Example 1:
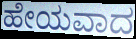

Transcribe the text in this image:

ಹೇಯವಾದ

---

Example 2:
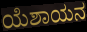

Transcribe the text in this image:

ಯೆಶಾಯನ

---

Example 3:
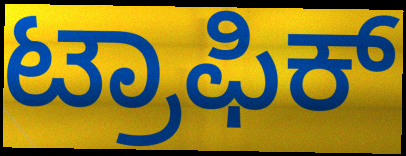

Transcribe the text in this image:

ಟ್ರಾಫಿಕ್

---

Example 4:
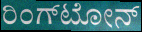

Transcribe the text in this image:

ರಿಂಗ್‌ಟೋನ್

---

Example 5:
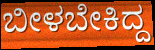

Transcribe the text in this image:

ಬೀಳಬೇಕಿದ್ದ